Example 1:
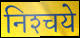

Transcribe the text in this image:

निश्चये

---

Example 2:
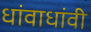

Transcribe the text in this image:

धांवाधांवी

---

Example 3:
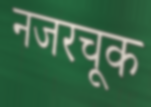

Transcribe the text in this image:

नजरचूक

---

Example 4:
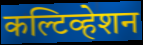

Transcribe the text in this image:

कल्टिव्हेशन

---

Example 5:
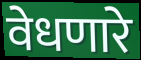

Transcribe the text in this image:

वेधणारे